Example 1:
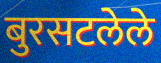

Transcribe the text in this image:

बुरसटलेले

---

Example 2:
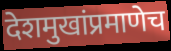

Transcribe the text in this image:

देशमुखांप्रमाणेच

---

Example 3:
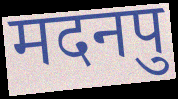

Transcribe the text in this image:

मदनपु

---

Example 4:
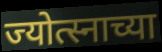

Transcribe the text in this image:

ज्योत्स्नाच्या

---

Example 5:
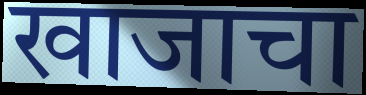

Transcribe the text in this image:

खाजाचा